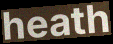
heath